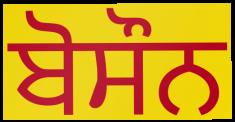
ਬੋਸੌਨ